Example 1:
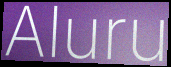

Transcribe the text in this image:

Aluru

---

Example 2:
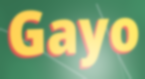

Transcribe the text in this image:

Gayo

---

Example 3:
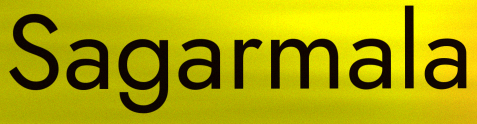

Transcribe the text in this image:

Sagarmala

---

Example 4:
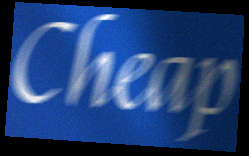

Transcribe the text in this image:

Cheap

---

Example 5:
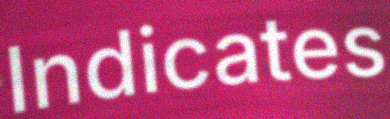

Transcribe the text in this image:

Indicates